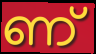
ണ്